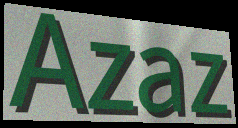
Azaz